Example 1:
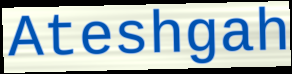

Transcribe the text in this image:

Ateshgah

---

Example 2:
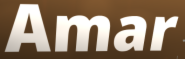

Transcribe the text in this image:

Amar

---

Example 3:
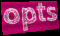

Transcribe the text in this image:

opts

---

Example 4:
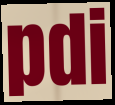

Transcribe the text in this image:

pdi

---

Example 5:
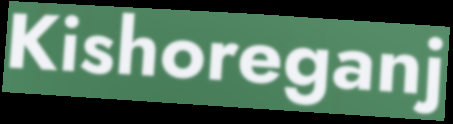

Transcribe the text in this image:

Kishoreganj